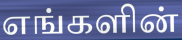
எங்களின்